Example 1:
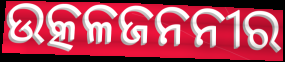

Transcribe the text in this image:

ଉତ୍କଳଜନନୀର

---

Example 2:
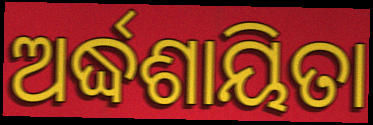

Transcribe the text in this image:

ଅର୍ଦ୍ଧଶାୟିତା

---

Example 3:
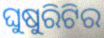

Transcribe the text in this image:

ଘୁଷୁରିଟିର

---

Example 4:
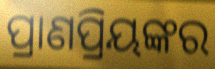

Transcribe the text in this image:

ପ୍ରାଣପ୍ରିୟଙ୍କର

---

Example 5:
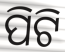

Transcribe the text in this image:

ପିଟି